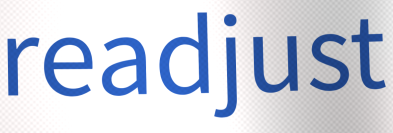
readjust